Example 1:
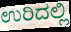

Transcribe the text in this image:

ಉರಿದಲ್ಲಿ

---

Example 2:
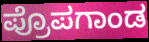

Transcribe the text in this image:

ಪ್ರೊಪಗಾಂಡ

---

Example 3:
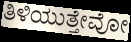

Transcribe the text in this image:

ತಿಳಿಯುತ್ತೇವೋ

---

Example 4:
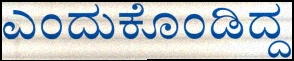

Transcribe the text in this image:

ಎಂದುಕೊಂಡಿದ್ದ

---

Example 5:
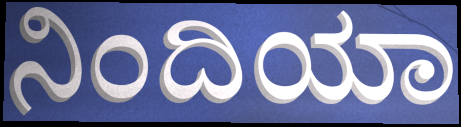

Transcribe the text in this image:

ನಿಂದಿಯಾ